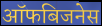
ऑफबिजनेस